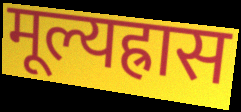
मूल्यह्रास